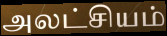
அலட்சியம்